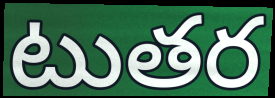
టుతర